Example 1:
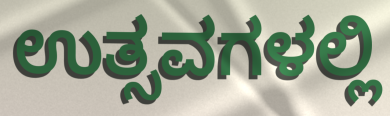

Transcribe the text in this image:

ಉತ್ಸವಗಳಲ್ಲಿ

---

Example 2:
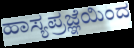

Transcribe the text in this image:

ಹಾಸ್ಯಪ್ರಜ್ಞೆಯಿಂದ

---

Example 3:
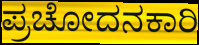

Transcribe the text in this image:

ಪ್ರಚೋದನಕಾರಿ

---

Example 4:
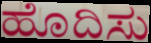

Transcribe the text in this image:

ಹೊದಿಸು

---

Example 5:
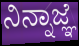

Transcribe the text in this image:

ನಿನ್ನಾಜ್ಞೆ